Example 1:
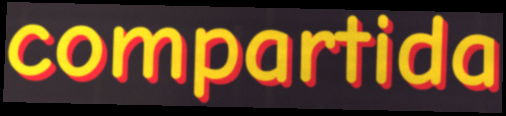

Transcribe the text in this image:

compartida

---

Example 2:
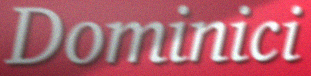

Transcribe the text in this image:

Dominici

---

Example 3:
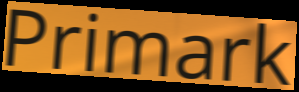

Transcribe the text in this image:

Primark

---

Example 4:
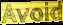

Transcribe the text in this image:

Avoid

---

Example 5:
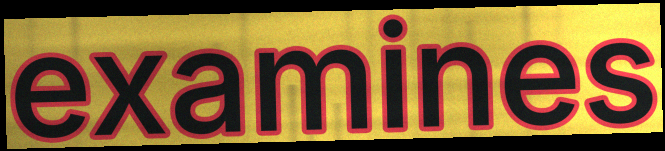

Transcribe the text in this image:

examines